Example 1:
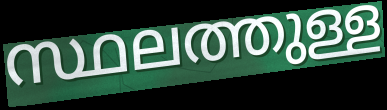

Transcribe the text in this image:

സ്ഥലത്തുള്ള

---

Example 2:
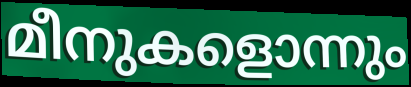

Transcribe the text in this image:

മീനുകളൊന്നും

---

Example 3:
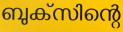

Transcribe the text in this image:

ബുക്‌സിന്റെ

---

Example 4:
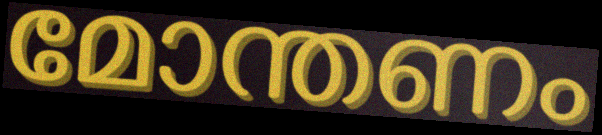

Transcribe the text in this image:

മോന്തണം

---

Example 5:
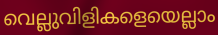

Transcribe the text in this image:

വെല്ലുവിളികളെയെല്ലാം